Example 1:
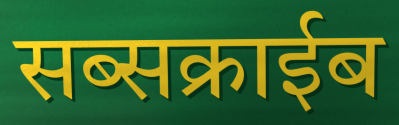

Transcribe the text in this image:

सब्सक्राईब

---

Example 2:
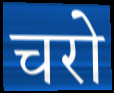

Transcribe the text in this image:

चरो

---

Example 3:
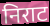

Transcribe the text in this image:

निराट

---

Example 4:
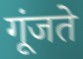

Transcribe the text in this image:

गूंजते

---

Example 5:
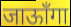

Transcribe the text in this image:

जाऊाँगा